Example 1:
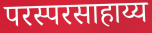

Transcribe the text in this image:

परस्परसाहाय्य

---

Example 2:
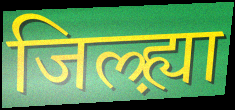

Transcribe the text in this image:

जिल्ह्य़ा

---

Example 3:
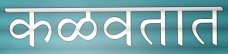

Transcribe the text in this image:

कळवतात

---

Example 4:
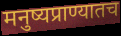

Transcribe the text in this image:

मनुष्यप्राण्यातच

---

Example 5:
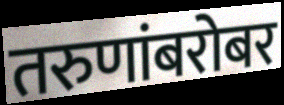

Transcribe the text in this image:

तरुणांबरोबर